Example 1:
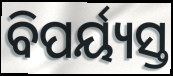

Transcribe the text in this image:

ବିପର୍ୟ୍ୟସ୍ତ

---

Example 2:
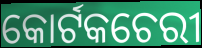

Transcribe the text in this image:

କୋର୍ଟକଚେରୀ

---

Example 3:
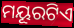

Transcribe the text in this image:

ମୟୂରଟିଏ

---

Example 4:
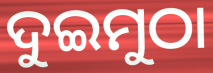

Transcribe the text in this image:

ଦୁଇମୁଠା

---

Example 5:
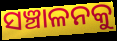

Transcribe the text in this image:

ସଞ୍ଚାଳନକୁ